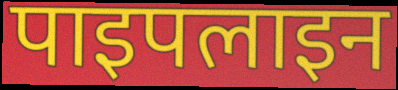
पाइपलाइन